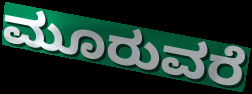
ಮೂರುವರೆ